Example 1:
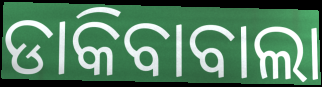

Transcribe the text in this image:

ଡାକିବାବାଲା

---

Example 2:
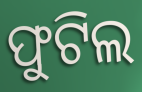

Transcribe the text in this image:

ଫୁଟିଲ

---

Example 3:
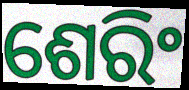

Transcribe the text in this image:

ଶେରିଂ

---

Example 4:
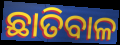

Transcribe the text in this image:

ଛାତିବାଳ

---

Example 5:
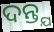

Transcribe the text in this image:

ଦନ୍ତ୍ଯ